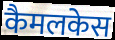
कैमलकेस